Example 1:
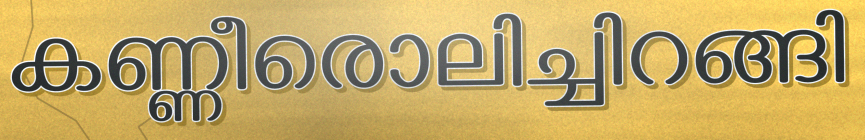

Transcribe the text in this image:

കണ്ണീരൊലിച്ചിറങ്ങി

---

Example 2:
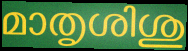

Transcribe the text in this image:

മാതൃശിശു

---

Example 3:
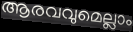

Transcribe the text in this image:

ആരവവുമെല്ലാം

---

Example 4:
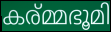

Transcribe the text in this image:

കര്മ്മഭൂമി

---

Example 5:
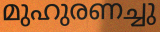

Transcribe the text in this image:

മുഹുരണച്ചു